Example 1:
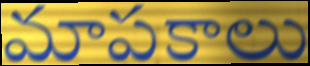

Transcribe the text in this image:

మాపకాలు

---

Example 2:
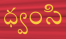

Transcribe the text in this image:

ధ్వంసి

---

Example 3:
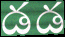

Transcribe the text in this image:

డడ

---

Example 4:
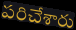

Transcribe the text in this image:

పరిచేశారు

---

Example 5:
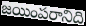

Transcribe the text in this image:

జయింపరానిది